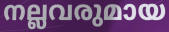
നല്ലവരുമായ